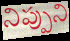
నిప్పుని